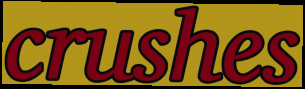
crushes